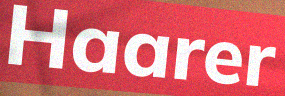
Haarer